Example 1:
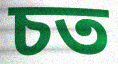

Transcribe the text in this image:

চত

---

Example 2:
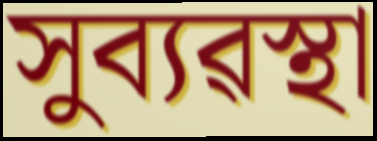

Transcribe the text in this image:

সুব্যৱস্থা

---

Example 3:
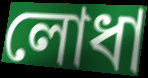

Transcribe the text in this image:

লোধা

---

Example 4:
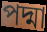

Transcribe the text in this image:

পদ্মা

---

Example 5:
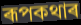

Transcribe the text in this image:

ৰূপকথাৰ